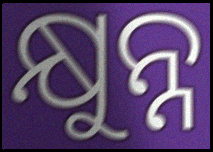
କ୍ଷୁନ୍ନ